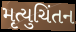
મૃત્યુચિંતન